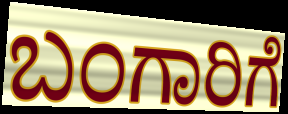
ಬಂಗಾರಿಗೆ